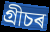
গ্ৰীচৰ